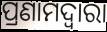
ପ୍ରଣାମଦ୍ୱାରା